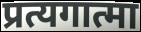
प्रत्यगात्मा